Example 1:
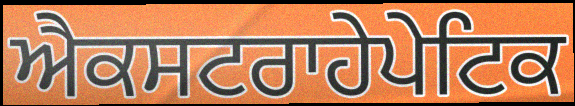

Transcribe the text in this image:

ਐਕਸਟਰਾਹੇਪੇਟਿਕ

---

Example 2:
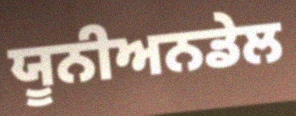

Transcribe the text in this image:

ਯੂਨੀਅਨਡੇਲ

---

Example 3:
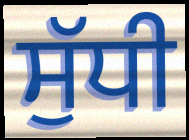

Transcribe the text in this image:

ਸੁੱਧੀ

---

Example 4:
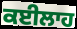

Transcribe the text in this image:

ਕਈਲਾਹ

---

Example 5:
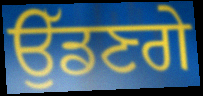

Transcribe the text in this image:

ਉੱਡਣਗੇ